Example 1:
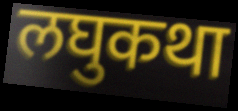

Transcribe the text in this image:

लघुकथा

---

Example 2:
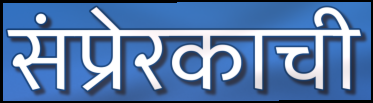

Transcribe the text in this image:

संप्रेरकाची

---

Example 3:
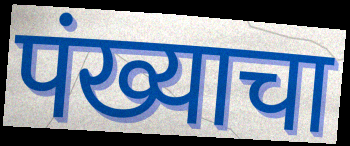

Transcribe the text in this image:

पंख्याचा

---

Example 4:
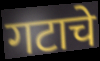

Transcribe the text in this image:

गटाचे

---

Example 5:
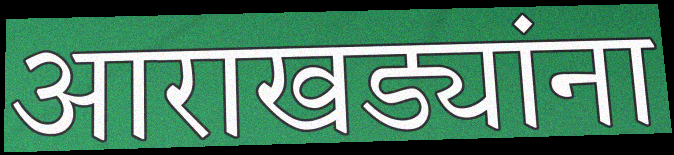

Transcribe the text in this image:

आराखड्यांना